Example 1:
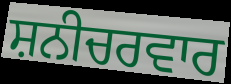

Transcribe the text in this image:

ਸ਼ਨੀਚਰਵਾਰ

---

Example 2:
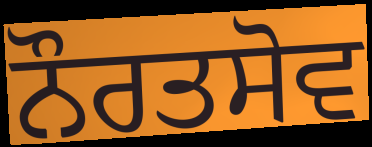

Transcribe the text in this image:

ਨੌਰਤਸੋਵ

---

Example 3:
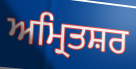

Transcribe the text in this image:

ਅਮ੍ਰਿਤਸ਼ਰ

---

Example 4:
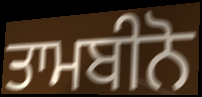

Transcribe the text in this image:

ਤਾਮਬੀਨੋ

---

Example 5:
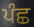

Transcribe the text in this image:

ਪੰਛ